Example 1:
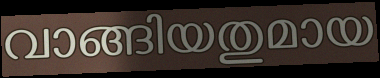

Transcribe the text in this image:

വാങ്ങിയതുമായ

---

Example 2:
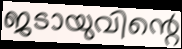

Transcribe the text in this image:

ജടായുവിന്റെ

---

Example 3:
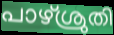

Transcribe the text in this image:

പാഴ്ശ്രുതി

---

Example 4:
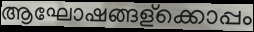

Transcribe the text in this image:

ആഘോഷങ്ങള്ക്കൊപ്പം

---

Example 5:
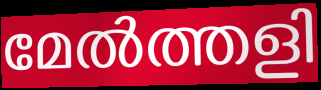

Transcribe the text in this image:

മേൽത്തളി